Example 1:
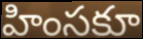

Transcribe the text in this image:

హింసకూ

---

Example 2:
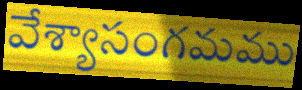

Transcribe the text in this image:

వేశ్యాసంగమము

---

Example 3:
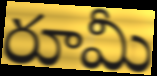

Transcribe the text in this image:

రూమీ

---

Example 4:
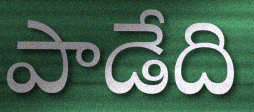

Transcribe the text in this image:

పాడేది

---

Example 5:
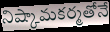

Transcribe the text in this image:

నిష్కామకర్మతోనే